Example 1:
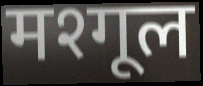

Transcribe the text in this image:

मश्गूल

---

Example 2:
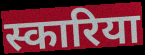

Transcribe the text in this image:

स्कारिया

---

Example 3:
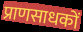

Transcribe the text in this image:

प्राणसाधकों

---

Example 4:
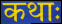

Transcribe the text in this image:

कथाः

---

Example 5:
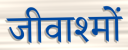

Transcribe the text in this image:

जीवाश्मों